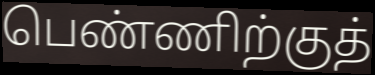
பெண்ணிற்குத்